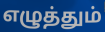
எழுத்தும்